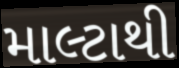
માલ્ટાથી